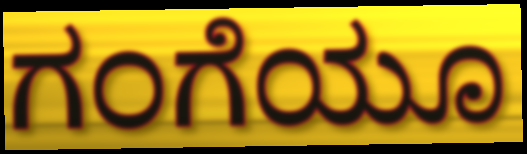
ಗಂಗೆಯೂ